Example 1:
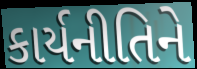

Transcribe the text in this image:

કાર્યનીતિને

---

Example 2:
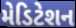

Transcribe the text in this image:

મેડિટેશન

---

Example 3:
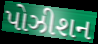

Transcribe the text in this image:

પોઝીશન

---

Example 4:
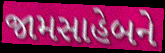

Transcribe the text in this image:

જામસાહેબને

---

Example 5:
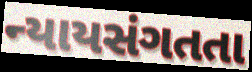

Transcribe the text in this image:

ન્યાયસંગતતા